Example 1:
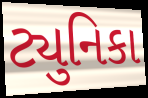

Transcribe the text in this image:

ટ્યુનિકા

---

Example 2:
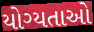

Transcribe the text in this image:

યોગ્યતાઓ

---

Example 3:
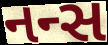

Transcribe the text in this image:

નન્સ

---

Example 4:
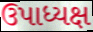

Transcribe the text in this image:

ઉપાધ્યક્ષ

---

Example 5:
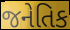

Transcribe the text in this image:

જનેતિક